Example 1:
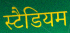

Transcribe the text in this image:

स्टैडियम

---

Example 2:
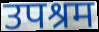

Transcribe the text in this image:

उपश्रम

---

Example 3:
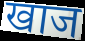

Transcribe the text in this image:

खाज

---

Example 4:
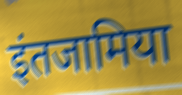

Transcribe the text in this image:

इंतजामिया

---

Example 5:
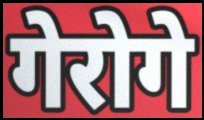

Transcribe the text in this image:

गेरोगे